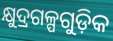
କ୍ଷୁଦ୍ରଗଳ୍ପଗୁଡ଼ିକ